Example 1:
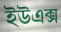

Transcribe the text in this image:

ইউএক্স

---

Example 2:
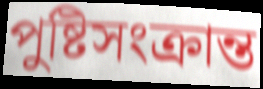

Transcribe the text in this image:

পুষ্টিসংক্রান্ত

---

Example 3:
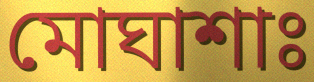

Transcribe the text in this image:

মোঘাশাঃ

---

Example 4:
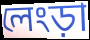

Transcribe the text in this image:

লেংড়া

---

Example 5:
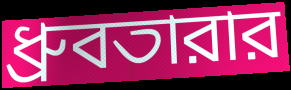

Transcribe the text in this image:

ধ্রুবতারার